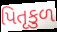
પિતૃકુળ